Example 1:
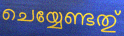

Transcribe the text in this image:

ചെയ്യേണ്ടതു്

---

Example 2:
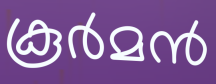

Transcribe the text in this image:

കൂർമൻ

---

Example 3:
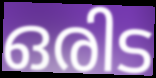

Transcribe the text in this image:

ഒരിട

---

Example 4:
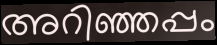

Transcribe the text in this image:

അറിഞ്ഞപ്പം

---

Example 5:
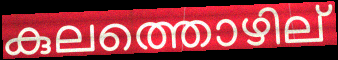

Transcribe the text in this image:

കുലത്തൊഴില്